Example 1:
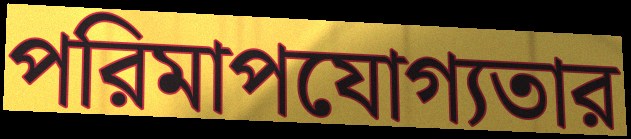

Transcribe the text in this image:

পরিমাপযোগ্যতার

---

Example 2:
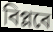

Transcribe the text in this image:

বিপ্লবে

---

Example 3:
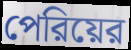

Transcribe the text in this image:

পেরিয়ের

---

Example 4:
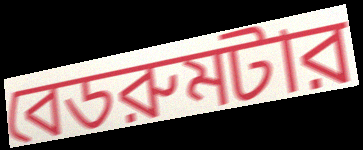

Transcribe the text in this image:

বেডরুমটার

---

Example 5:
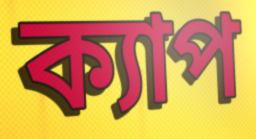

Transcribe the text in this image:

ক্যাপ